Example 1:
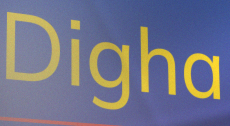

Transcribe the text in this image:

Digha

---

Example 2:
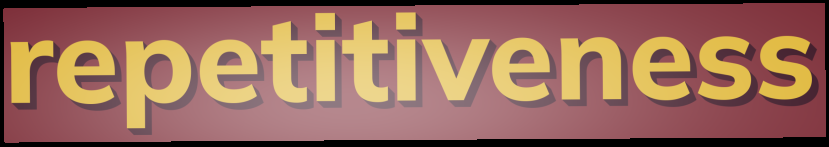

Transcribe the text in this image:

repetitiveness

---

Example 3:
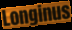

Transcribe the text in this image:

Longinus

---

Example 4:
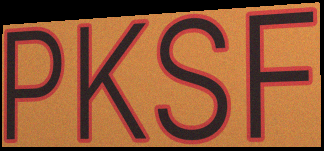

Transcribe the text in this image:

PKSF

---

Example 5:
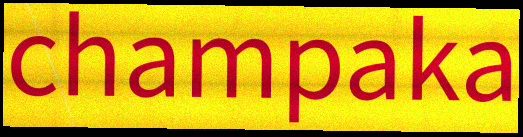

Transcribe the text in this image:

champaka